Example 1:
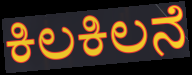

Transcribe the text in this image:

ಕಿಲಕಿಲನೆ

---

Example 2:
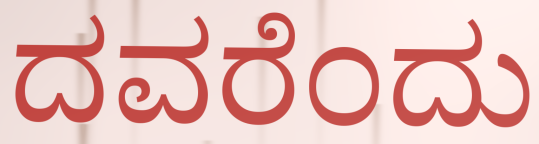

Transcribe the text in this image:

ದವರೆಂದು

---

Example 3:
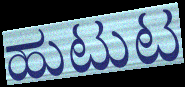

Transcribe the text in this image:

ಹುಟುಟ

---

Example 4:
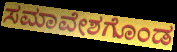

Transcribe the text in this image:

ಸಮಾವೇಶಗೊಂಡ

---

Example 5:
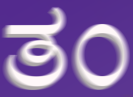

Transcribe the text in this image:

ತಂ